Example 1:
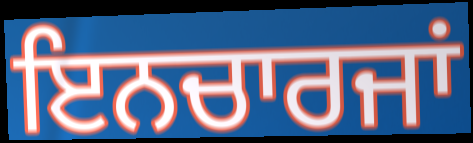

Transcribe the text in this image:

ਇਨਚਾਰਜਾਂ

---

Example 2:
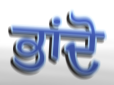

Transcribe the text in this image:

ਭਾਂਦੋ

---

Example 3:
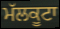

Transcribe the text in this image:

ਮੱਲਕੂਟਾ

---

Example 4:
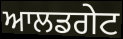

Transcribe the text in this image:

ਆਲਡਗੇਟ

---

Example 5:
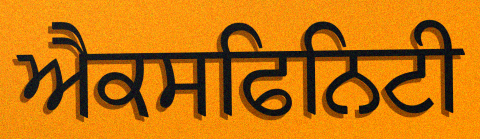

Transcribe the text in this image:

ਐਕਸਫਿਨਿਟੀ